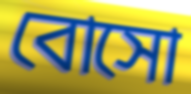
বোসো